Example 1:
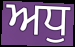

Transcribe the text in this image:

ਅਧੁ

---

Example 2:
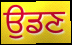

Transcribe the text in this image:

ਉਡਣ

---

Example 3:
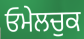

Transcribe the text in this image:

ਓਮੇਲਚੁਕ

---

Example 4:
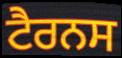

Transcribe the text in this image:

ਟੈਰਨਸ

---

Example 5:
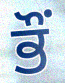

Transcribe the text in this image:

ਭੌਂ